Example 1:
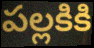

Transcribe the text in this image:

పల్లకికి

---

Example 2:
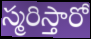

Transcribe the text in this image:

స్మరిస్తారో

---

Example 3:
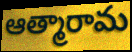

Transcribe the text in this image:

ఆత్మారామ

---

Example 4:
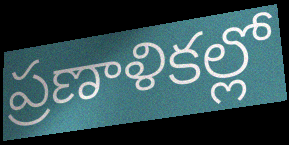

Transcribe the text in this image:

ప్రణాళికల్లో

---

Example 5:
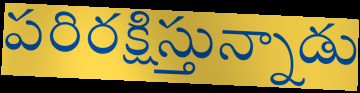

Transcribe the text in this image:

పరిరక్షిస్తున్నాడు